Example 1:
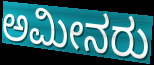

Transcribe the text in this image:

ಅಮೀನರು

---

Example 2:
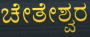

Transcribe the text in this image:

ಚೇತೇಶ್ವರ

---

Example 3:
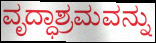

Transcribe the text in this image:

ವೃದ್ಧಾಶ್ರಮವನ್ನು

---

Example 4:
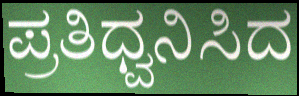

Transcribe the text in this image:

ಪ್ರತಿಧ್ವನಿಸಿದ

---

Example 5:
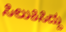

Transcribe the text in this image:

ಸಿಲುಕಿಸಿದ್ದು